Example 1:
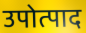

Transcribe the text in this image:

उपोत्पाद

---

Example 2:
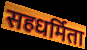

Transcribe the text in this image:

सहधर्मिता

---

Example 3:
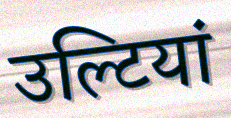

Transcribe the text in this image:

उल्टियां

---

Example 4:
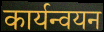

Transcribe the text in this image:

कार्यन्वयन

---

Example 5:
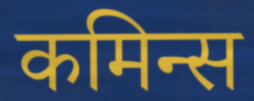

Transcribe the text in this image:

कमिन्स